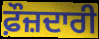
ਫ਼ੌਜ਼ਦਾਰੀ